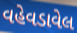
વહેવડાવેલ